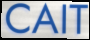
CAIT